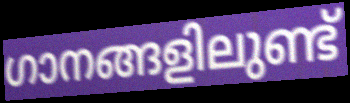
ഗാനങ്ങളിലുണ്ട്